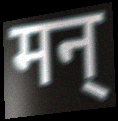
मन्